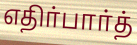
எதிர்பார்த்